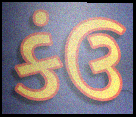
કંઉ